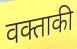
वक्ताकी